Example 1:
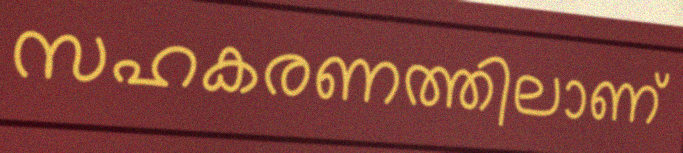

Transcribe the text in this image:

സഹകരണത്തിലാണ്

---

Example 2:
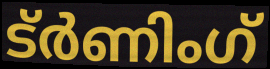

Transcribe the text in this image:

ട്ർണിംഗ്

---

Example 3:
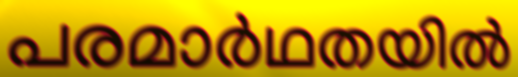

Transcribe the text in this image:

പരമാർഥതയിൽ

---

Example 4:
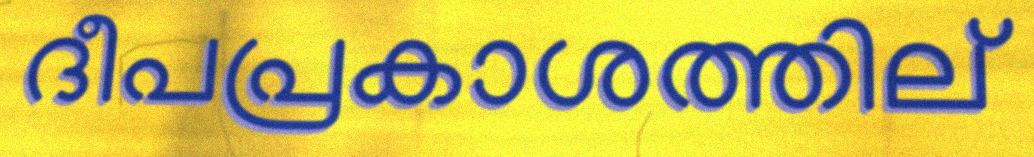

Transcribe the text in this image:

ദീപപ്രകാശത്തില്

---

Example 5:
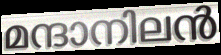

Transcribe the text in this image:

മന്ദാനിലൻ